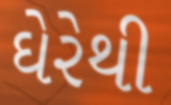
ઘેરેથી